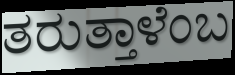
ತರುತ್ತಾಳೆಂಬ